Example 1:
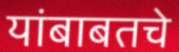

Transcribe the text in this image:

यांबाबतचे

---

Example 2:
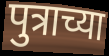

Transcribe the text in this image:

पुत्राच्या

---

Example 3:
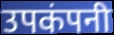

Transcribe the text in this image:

उपकंपनी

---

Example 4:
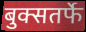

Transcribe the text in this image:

बुक्सतर्फे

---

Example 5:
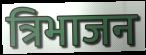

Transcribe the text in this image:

त्रिभाजन